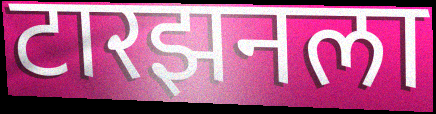
टारझनला